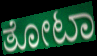
ತೋಟಾ